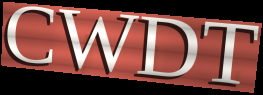
CWDT